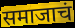
समाजाचं